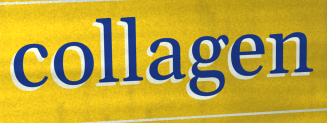
collagen